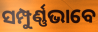
ସମ୍ପୁର୍ଣ୍ଣଭାବେ